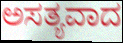
ಅಸತ್ಯವಾದ